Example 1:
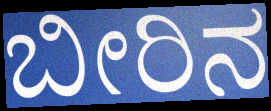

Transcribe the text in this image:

ಬೀರಿನ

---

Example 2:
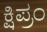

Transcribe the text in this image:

ಕ್ಷಿಪ್ರಂ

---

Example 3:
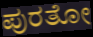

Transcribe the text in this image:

ಪುರತೋ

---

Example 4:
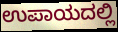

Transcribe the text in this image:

ಉಪಾಯದಲ್ಲಿ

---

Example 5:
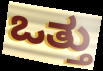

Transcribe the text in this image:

ಒತ್ತು